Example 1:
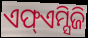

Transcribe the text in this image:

ଏଫ୍ଏମ୍ସିଜି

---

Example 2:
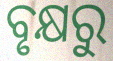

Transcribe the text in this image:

ବୃକ୍ଷରୁ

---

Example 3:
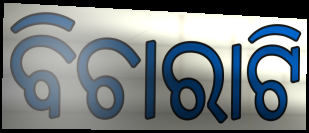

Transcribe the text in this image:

ବିଚାରାଟି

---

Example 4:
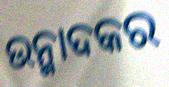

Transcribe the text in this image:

ଉନ୍ମାଦକର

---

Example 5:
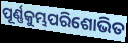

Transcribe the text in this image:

ପୂର୍ଣ୍ଣକୁମ୍ଭପରିଶୋଭିତ